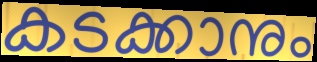
കടക്കാനും